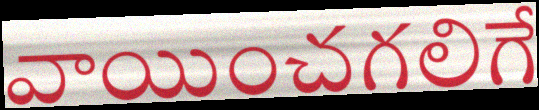
వాయించగలిగే